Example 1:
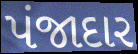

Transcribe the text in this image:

પંજાદાર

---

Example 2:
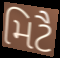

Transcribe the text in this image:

મિટૈ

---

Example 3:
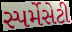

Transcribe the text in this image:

સ્પર્મેસેટી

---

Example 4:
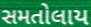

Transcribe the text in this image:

સમતોલાય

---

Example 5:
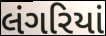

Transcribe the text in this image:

લંગરિયાં